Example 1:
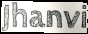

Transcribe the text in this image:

Jhanvi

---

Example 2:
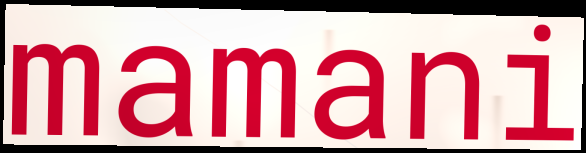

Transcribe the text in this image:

mamani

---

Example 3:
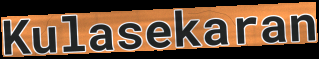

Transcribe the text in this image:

Kulasekaran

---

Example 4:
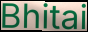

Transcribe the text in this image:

Bhitai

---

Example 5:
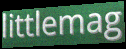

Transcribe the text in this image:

littlemag